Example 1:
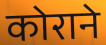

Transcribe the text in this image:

कोराने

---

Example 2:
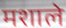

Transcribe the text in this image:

मशाले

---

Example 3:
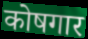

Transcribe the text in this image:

कोषगार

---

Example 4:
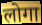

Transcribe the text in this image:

लोगा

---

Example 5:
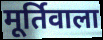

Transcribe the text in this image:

मूर्तिवाला